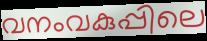
വനംവകുപ്പിലെ